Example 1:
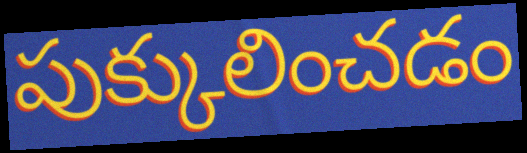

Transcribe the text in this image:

పుక్కులించడం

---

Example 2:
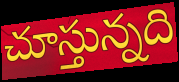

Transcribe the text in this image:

చూస్తున్నది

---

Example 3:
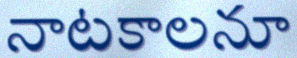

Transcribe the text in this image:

నాటకాలనూ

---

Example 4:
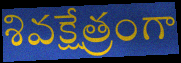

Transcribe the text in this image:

శివక్షేత్రంగా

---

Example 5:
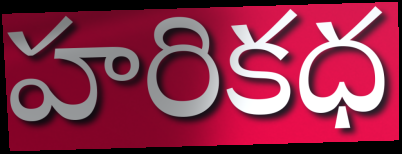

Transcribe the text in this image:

హరికధ